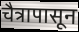
चैत्रापासून